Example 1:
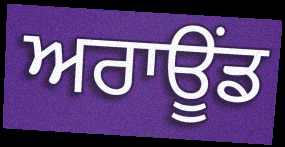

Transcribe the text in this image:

ਅਰਾਊਂਡ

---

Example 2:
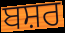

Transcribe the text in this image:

ਬਸ਼ਰ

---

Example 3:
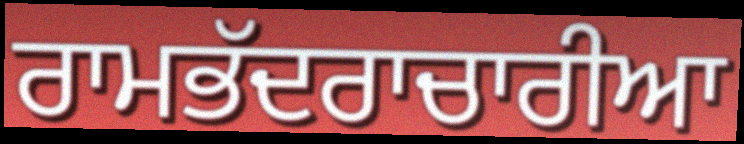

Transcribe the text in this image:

ਰਾਮਭੱਦਰਾਚਾਰੀਆ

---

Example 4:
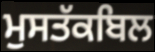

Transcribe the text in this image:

ਮੁਸਤੱਕਬਿਲ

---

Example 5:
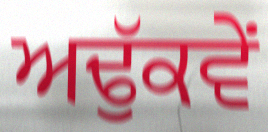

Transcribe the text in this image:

ਅਢੁੱਕਵੇਂ